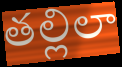
తల్లిలా